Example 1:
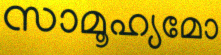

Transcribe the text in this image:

സാമൂഹ്യമോ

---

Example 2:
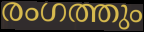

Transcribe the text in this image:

രംഗത്തും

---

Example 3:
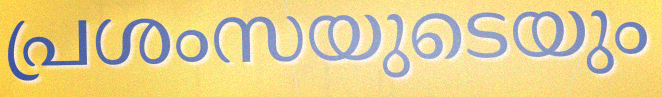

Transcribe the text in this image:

പ്രശംസയുടെയും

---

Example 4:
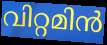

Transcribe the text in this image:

വിറ്റമിൻ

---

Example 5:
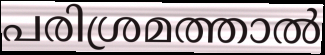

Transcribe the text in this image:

പരിശ്രമത്താൽ